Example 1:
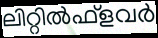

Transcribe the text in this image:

ലിറ്റിൽഫ്ളവർ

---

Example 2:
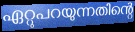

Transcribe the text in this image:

ഏറ്റുപറയുന്നതിന്റെ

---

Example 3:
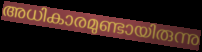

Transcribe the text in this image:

അധികാരമുണ്ടായിരുന്നു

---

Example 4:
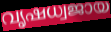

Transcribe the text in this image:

വൃഷധ്വജായ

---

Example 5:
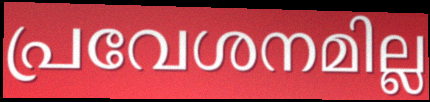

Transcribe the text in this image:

പ്രവേശനമില്ല